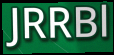
JRRBl